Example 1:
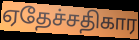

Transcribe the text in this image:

ஏதேச்சதிகார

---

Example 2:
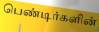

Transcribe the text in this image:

பெண்டிர்களின்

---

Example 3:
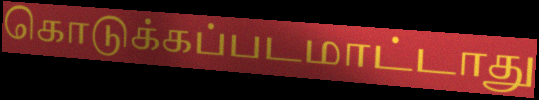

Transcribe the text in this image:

கொடுக்கப்படமாட்டாது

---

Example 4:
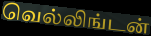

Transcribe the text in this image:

வெல்லிங்டன்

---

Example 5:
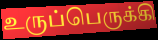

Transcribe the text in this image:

உருப்பெருக்கி